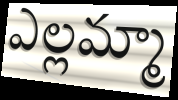
ఎల్లమ్మా